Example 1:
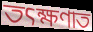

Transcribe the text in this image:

তৎক্ষণাত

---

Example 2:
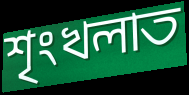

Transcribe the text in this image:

শৃংখলাত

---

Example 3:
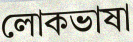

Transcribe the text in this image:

লোকভাষা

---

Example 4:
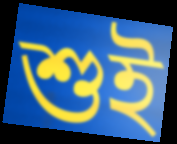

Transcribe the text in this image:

শুই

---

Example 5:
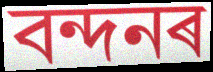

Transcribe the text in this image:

বন্দনৰ